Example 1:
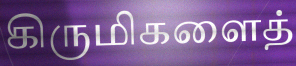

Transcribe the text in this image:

கிருமிகளைத்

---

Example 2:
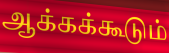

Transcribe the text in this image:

ஆக்கக்கூடும்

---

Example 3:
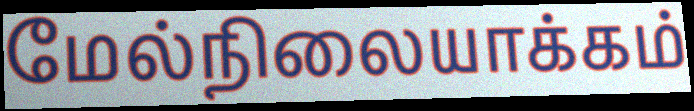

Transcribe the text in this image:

மேல்நிலையாக்கம்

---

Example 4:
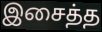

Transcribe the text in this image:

இசைத்த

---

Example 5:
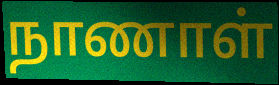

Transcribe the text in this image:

நாணாள்